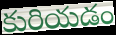
కురియడం